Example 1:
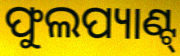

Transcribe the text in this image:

ଫୁଲପ୍ୟାଣ୍ଟ୍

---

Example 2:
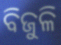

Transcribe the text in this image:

ବିଜୁଳି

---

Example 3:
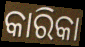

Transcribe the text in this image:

କାରିକା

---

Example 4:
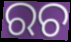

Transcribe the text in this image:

ରଚ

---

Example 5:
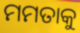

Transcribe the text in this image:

ମମତାକୁ